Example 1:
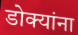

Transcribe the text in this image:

डोक्यांना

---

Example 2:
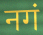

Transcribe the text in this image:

नगं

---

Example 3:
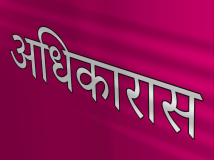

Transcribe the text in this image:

अधिकारास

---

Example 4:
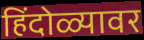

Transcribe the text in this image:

हिंदोळ्यावर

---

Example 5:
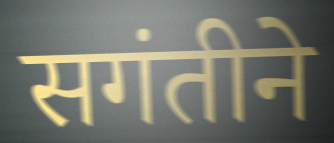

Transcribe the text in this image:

सगंतीने